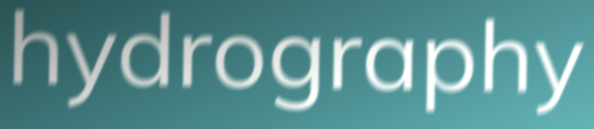
hydrography